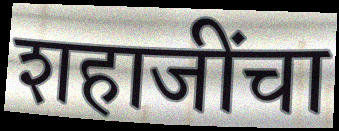
शहाजींचा